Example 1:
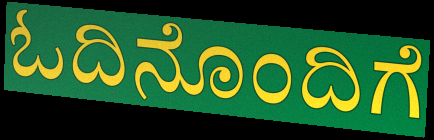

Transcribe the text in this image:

ಓದಿನೊಂದಿಗೆ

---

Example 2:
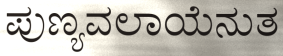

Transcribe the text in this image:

ಪುಣ್ಯವಲಾಯೆನುತ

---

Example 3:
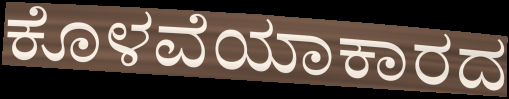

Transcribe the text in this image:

ಕೊಳವೆಯಾಕಾರದ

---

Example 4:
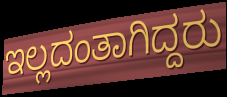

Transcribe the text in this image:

ಇಲ್ಲದಂತಾಗಿದ್ದರು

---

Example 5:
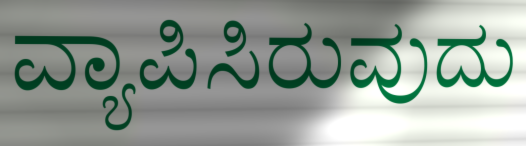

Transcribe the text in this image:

ವ್ಯಾಪಿಸಿರುವುದು